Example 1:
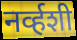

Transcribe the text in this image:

नर्व्हशी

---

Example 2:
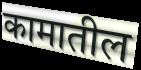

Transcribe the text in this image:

कामातील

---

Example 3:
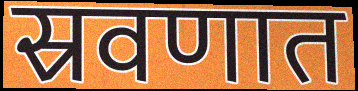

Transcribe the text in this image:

स्रवणात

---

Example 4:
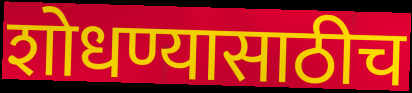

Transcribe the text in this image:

शोधण्यासाठीच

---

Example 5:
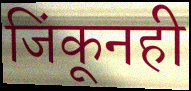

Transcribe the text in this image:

जिंकूनही